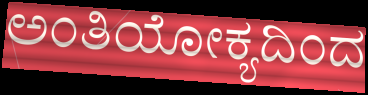
ಅಂತಿಯೋಕ್ಯದಿಂದ